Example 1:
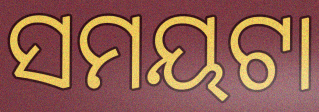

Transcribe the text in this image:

ସମୟଟା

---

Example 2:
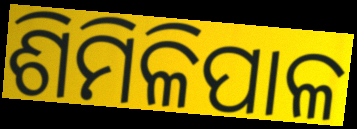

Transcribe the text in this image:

ଶିମିଳିପାଳ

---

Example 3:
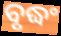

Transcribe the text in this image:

ବୃଦ୍ଧଂ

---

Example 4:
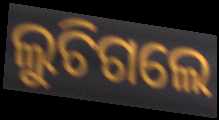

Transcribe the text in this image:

ଲୁଚିଗଲେ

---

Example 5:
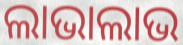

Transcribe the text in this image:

ଲାଭାଲାଭ